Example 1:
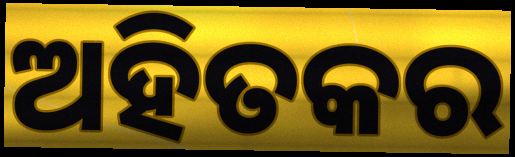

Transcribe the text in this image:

ଅହିତକର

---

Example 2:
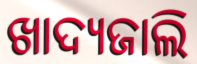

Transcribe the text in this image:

ଖାଦ୍ୟଜାଲି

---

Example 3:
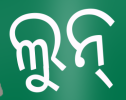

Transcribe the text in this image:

ଲୁନ୍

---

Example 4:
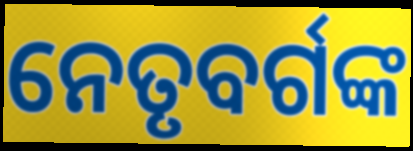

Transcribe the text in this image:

ନେତୃବର୍ଗଙ୍କ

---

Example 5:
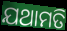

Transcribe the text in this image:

ଯଥାମତି